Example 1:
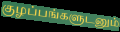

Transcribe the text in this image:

குழப்பங்களுடனும்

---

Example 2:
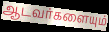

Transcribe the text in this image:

ஆடவர்களையும்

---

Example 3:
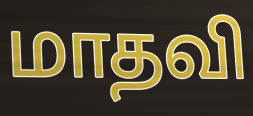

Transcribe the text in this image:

மாதவி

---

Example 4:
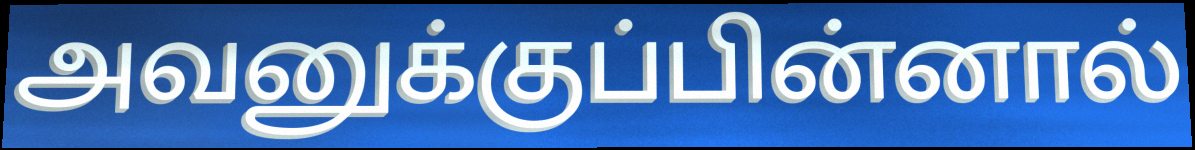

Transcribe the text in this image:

அவனுக்குப்பின்னால்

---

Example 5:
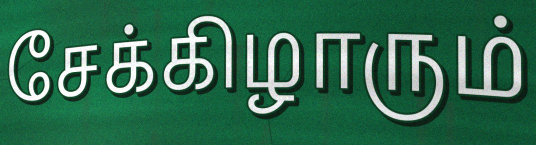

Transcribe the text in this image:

சேக்கிழாரும்